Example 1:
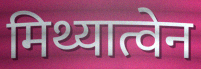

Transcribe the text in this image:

मिथ्यात्वेन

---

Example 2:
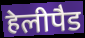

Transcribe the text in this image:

हेलीपैड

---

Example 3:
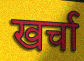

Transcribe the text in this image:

खर्चा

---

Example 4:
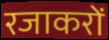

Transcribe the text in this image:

रजाकरों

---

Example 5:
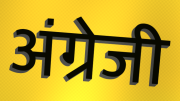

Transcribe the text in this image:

अंग्रेजी